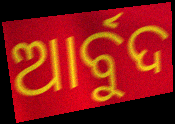
ଆର୍ବୁଦ